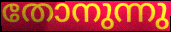
തോനുന്നു